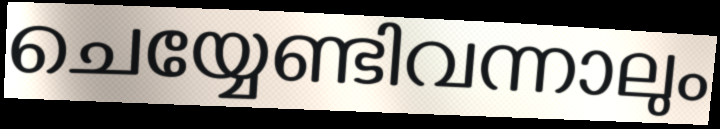
ചെയ്യേണ്ടിവന്നാലും